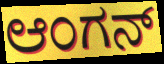
ಆಂಗನ್